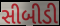
સીબીડી